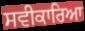
ਸਵੀਕਾਰਿਆ